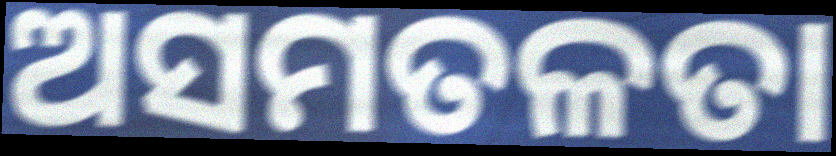
ଅସମତଳତା